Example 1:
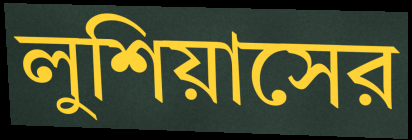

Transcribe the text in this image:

লুশিয়াসের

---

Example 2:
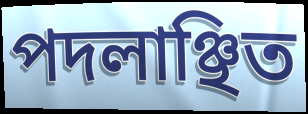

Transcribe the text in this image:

পদলাঞ্ছিত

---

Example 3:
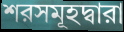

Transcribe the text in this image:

শরসমূহদ্বারা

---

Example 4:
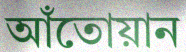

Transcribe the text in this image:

আঁতোয়ান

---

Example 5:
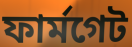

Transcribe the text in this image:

ফার্মগেট